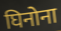
घिनोना